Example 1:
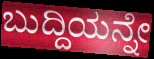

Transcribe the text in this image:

ಬುದ್ದಿಯನ್ನೇ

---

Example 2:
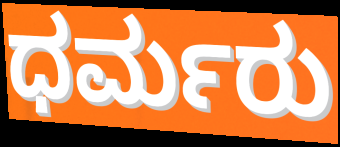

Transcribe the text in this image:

ಧರ್ಮರು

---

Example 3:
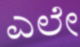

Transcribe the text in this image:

ಎಲೇ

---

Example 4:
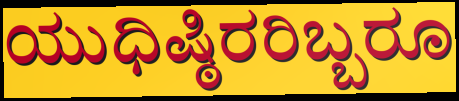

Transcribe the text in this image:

ಯುಧಿಷ್ಠಿರರಿಬ್ಬರೂ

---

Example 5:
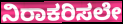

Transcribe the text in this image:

ನಿರಾಕರಿಸಲೇ